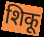
शिकू